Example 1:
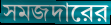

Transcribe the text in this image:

সমজদারের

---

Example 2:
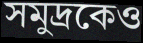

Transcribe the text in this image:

সমুদ্রকেও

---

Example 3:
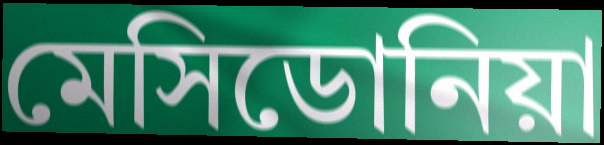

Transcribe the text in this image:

মেসিডোনিয়া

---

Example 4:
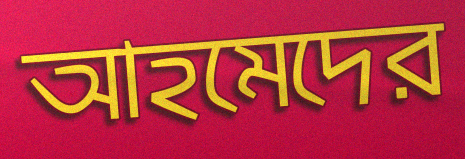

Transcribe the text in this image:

আহমেদের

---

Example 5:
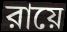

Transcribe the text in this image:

রায়ে